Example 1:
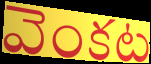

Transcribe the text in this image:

వెంకట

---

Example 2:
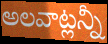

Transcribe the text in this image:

అలవాట్లన్నీ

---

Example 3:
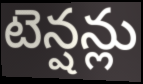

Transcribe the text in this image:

టెన్షన్లు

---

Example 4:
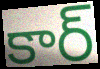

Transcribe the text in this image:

కార్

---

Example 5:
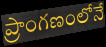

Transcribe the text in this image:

ప్రాంగణంలోనే